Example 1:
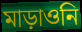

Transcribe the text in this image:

মাড়াওনি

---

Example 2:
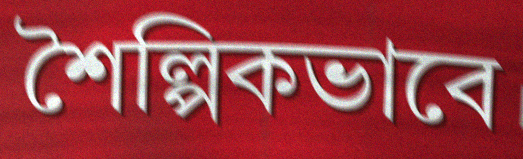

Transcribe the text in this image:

শৈল্পিকভাবে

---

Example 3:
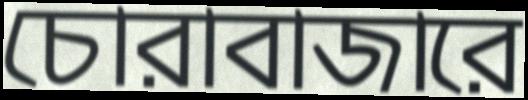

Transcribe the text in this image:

চোরাবাজারে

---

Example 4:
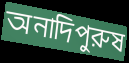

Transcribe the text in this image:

অনাদিপুরুষ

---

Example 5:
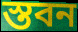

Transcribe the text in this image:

স্তবন